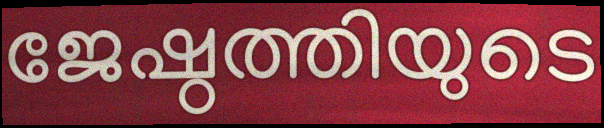
ജേഷ്ഠത്തിയുടെ